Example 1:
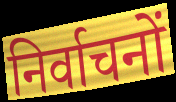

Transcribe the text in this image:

निर्वाचनों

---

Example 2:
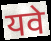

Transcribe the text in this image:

यवे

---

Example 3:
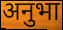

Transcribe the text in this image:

अनुभा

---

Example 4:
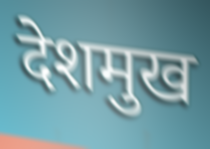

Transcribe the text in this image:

देशमुख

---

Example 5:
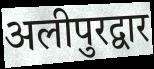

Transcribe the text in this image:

अलीपुरद्वार